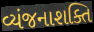
વ્યંજનાશક્તિ